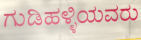
ಗುಡಿಹಳ್ಳಿಯವರು